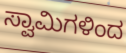
ಸ್ವಾಮಿಗಳಿಂದ